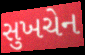
સુખચેન